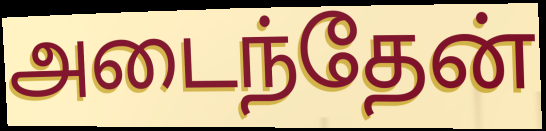
அடைந்தேன்